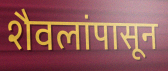
शैवलांपासून